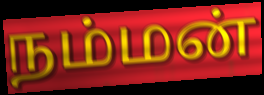
நம்மன்